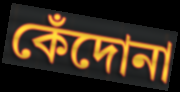
কেঁদোনা